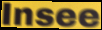
Insee